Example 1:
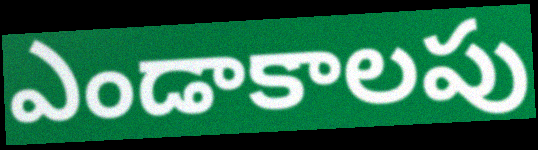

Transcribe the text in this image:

ఎండాకాలపు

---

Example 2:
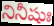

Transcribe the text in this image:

నినీషుః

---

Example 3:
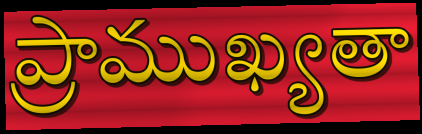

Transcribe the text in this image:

ప్రాముఖ్యతా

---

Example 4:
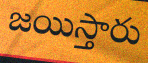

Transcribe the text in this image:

జయిస్తారు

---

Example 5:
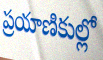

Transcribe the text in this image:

ప్రయాణికుల్లో